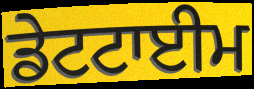
ਡੇਟਟਾਈਮ